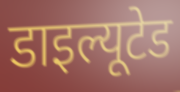
डाइल्यूटेड